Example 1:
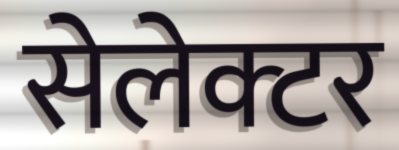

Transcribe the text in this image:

सेलेक्‍टर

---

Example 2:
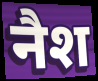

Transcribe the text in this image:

नैश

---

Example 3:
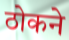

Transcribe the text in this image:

ठोकने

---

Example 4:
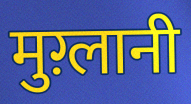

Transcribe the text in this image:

मुग़्लानी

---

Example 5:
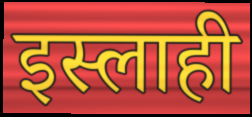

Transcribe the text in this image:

इस्लाही